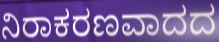
ನಿರಾಕರಣವಾದದ